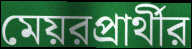
মেয়রপ্রার্থীর